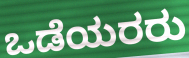
ಒಡೆಯರರು